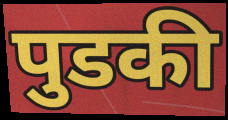
पुडकी